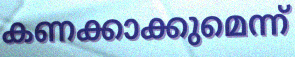
കണക്കാക്കുമെന്ന്